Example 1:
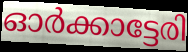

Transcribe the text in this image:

ഓർക്കാട്ടേരി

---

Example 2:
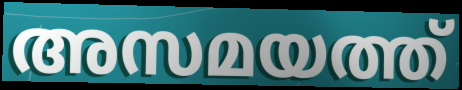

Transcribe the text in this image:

അസമയത്ത്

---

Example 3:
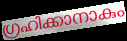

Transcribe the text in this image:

ഗ്രഹിക്കാനാകും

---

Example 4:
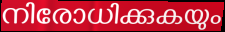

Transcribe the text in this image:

നിരോധിക്കുകയും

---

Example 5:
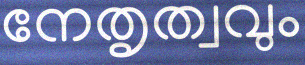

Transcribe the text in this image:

നേതൃത്വവും